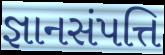
જ્ઞાનસંપત્તિ